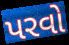
પરવો